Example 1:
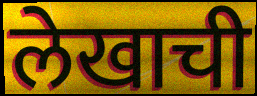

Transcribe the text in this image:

लेखाची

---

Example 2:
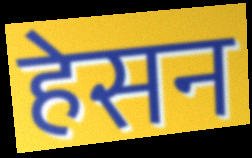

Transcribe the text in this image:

हेसन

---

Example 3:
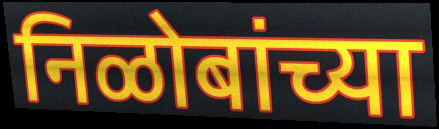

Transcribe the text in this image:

निळोबांच्या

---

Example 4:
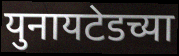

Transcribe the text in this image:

युनायटेडच्या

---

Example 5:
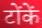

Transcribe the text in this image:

टोंकें